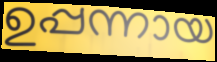
ഉപ്പന്നായ